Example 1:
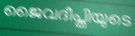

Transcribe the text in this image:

ജൈവദീപ്തിയുടെ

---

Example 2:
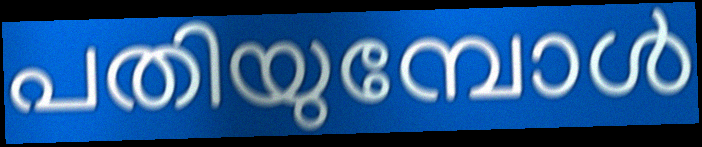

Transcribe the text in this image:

പതിയുമ്പോൾ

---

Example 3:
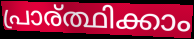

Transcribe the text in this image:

പ്രാര്ത്ഥിക്കാം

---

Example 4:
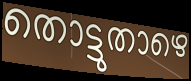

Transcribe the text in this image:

തൊട്ടുതാഴെ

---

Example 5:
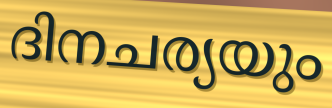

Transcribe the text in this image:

ദിനചര്യയും